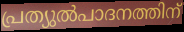
പ്രത്യുൽപാദനത്തിന്